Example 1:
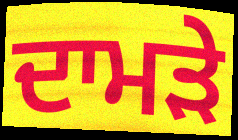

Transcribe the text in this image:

ਦਾਮੜੇ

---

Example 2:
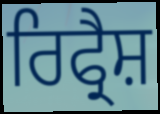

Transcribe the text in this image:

ਰਿਫ੍ਰੈਸ਼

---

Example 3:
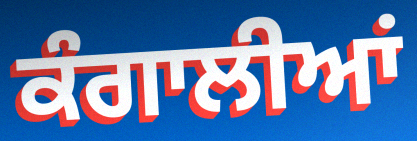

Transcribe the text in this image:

ਕੰਗਾਲੀਆਂ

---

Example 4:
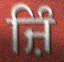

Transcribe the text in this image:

ਜ਼ਿੰ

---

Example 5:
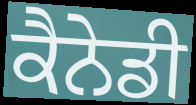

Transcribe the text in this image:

ਕੈਨੇਡੀ